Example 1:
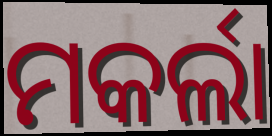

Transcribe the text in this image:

ମକର୍ଲା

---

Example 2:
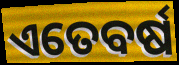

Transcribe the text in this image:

ଏତେବର୍ଷ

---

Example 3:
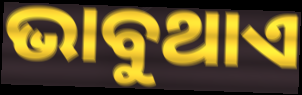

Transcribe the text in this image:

ଭାବୁଥାଏ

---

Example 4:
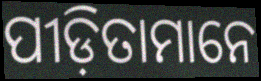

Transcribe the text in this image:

ପୀଡ଼ିତାମାନେ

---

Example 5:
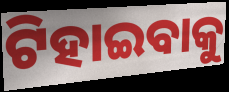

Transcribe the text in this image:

ଟିହାଇବାକୁ